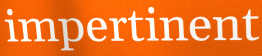
impertinent